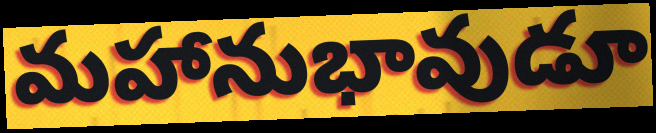
మహానుభావుడూ